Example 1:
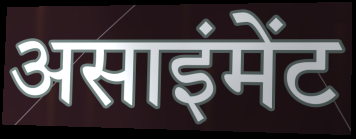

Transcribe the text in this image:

असाइंमेंट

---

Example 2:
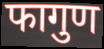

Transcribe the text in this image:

फागुण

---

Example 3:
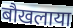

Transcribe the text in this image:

बौखलाया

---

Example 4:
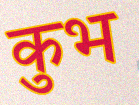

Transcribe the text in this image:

कुभ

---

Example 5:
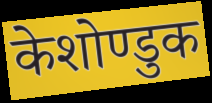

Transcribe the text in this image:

केशोण्डुक